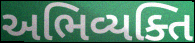
અભિવ્યક્તિ